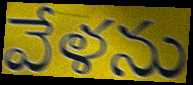
వేళను